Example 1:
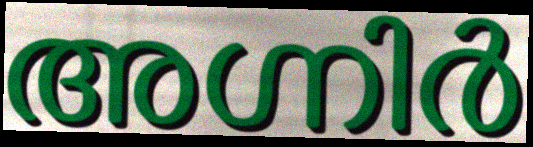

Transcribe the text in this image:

അഗ്നിർ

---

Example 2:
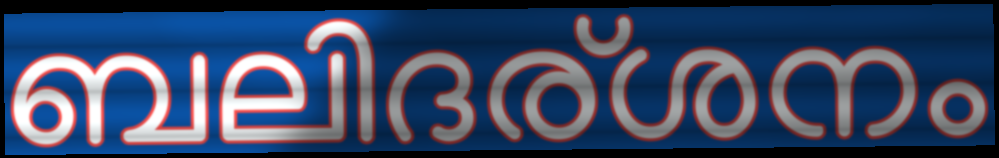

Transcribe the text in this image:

ബലിദര്ശനം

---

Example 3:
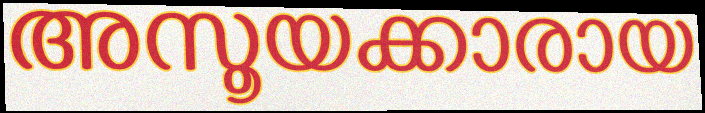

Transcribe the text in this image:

അസൂയക്കാരായ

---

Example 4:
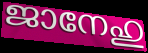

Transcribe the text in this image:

ജാനേഹു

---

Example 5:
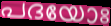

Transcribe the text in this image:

പദയോഃ